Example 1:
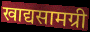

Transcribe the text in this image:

खाद्यसामग्री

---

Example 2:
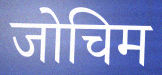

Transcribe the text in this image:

जोचिम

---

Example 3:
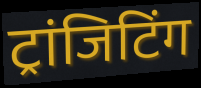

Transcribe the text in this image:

ट्रांजिटिंग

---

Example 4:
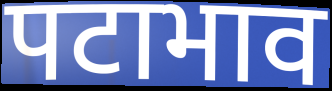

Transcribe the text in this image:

पटाभाव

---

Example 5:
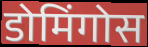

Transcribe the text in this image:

डोमिंगोस